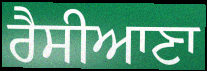
ਰੈਸੀਆਣਾ